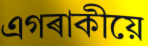
এগৰাকীয়ে